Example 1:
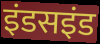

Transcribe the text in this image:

इंडसइंड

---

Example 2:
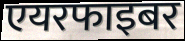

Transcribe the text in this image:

एयरफाइबर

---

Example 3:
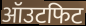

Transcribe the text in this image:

ऑउटफिट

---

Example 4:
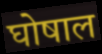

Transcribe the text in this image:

घोषाल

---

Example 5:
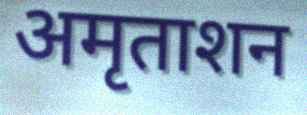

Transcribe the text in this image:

अमृताशन